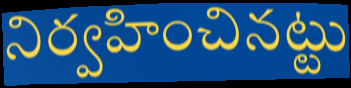
నిర్వహించినట్టు